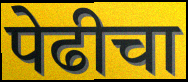
पेढीचा